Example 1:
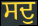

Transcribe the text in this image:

ਸਦੁ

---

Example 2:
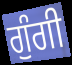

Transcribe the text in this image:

ਗੁੰਗੀ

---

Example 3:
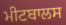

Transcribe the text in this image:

ਮੀਟਬਾਲਸ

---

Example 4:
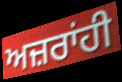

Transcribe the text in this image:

ਅਜ਼ਰਾਂਹੀ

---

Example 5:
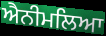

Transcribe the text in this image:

ਐਨੀਮਲਿਆ